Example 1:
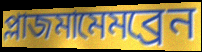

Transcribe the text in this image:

প্লাজমামেমব্রেন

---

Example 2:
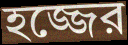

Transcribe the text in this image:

হজ্জের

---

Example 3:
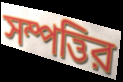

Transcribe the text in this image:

সম্পত্তির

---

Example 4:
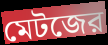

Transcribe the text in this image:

মেটজের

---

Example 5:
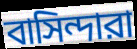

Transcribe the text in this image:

বাসিন্দারা